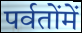
पर्वतोंमें